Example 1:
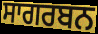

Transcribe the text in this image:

ਸਾਗਰਬਨ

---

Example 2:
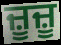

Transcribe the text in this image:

ਜ਼ੂਜ਼ੂ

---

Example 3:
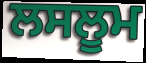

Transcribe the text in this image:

ਲਸਲੂਮ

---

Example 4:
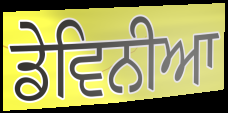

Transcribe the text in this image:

ਡੇਵਿਨੀਆ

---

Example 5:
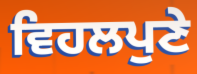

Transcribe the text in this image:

ਵਿਹਲਪੁਣੇ